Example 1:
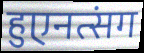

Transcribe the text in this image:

हुएनत्संग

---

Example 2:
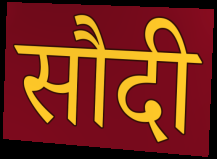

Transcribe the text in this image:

सौदी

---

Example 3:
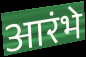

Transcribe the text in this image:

आरंभे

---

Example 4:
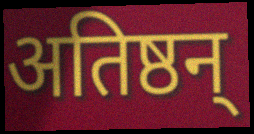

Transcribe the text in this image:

अतिष्ठन्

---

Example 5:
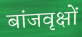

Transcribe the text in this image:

बांजवृक्षों